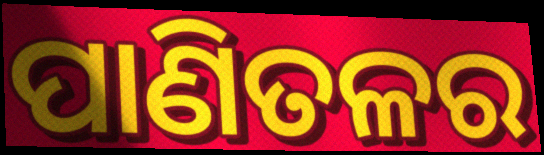
ପାଣିତଳର